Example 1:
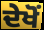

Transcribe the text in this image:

ਦੇਖੋਂ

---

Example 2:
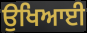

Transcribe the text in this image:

ਉਖਿਆਈ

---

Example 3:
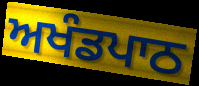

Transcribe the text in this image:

ਅਖੰਡਪਾਠ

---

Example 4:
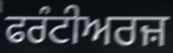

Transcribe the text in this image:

ਫਰੰਟੀਅਰਜ਼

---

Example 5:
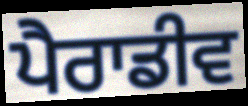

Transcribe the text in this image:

ਪੈਰਾਡੀਵ